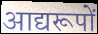
आद्यरूपों